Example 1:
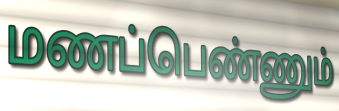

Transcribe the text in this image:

மணப்பெண்ணும்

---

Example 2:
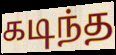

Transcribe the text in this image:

கடிந்த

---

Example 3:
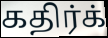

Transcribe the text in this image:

கதிர்க்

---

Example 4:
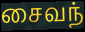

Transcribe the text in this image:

சைவந்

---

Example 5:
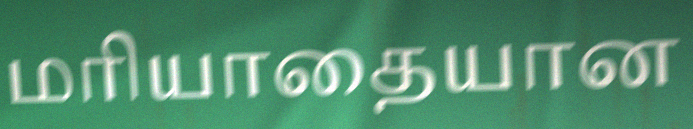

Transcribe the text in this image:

மரியாதையான